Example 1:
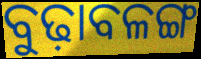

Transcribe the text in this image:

ବୁଢ଼ାବଳଙ୍ଗ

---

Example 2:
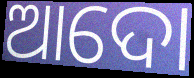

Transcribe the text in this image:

ଆଦୋ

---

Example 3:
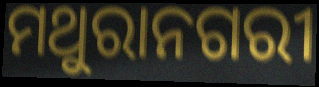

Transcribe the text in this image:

ମଥୁରାନଗରୀ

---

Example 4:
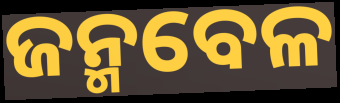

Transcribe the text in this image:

ଜନ୍ମବେଳ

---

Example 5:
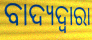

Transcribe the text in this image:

ବାଦ୍ୟଦ୍ୱାରା